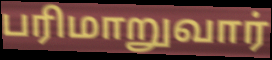
பரிமாறுவார்